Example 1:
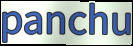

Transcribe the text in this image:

panchu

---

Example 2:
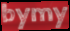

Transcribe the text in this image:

bymy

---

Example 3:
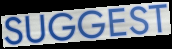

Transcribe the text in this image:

SUGGEST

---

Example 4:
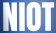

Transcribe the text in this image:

NIOT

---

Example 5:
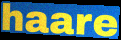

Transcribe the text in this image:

haare